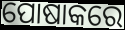
ପୋଷାକରେ